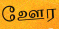
ஊேர